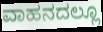
ವಾಹನದಲ್ಲೂ